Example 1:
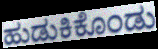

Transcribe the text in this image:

ಹುಡುಕಿಕೊಂಡು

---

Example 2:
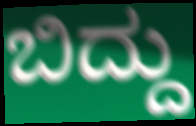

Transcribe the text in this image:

ಬಿದ್ದು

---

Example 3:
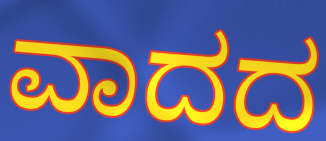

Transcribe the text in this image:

ವಾದದ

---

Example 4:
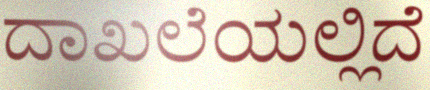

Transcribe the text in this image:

ದಾಖಲೆಯಲ್ಲಿದೆ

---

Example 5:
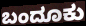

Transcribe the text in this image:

ಬಂದೂಕು